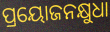
ପ୍ରୟୋଜନକ୍ଷୁଧା